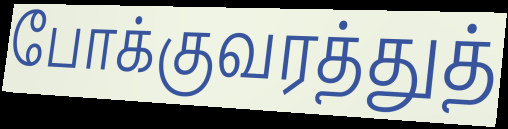
போக்குவரத்துத்